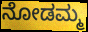
ನೋಡಮ್ಮ